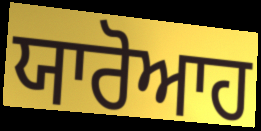
ਯਾਰੋਆਹ